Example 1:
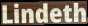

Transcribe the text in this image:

Lindeth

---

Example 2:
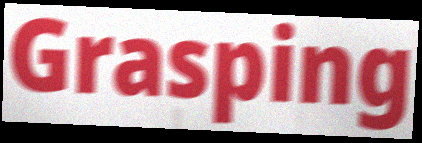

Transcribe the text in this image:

Grasping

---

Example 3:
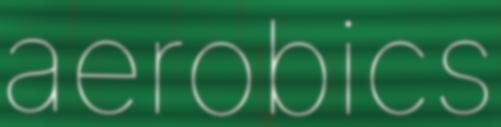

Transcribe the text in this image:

aerobics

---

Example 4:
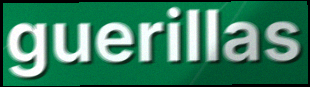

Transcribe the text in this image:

guerillas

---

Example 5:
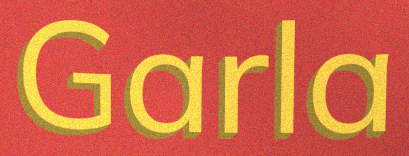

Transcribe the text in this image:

Garla